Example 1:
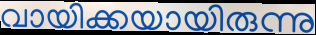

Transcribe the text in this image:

വായിക്കയായിരുന്നു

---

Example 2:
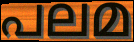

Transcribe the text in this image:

പലമ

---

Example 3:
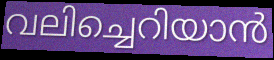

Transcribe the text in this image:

വലിച്ചെറിയാൻ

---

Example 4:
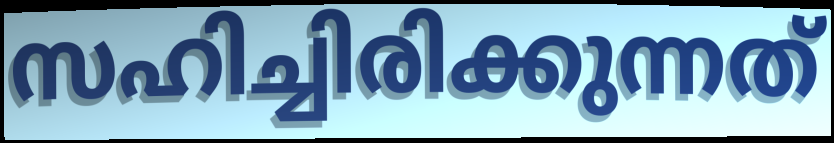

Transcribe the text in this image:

സഹിച്ചിരിക്കുന്നത്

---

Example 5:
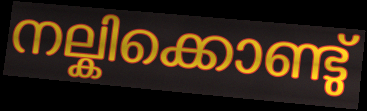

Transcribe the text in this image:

നല്കിക്കൊണ്ടു്